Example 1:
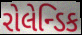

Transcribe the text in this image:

રોલેન્ડિક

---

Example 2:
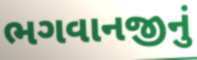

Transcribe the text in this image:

ભગવાનજીનું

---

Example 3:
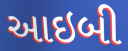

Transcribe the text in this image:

આઇબી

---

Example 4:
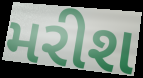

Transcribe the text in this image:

મરીશ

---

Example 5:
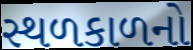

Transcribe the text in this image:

સ્થળકાળનો